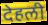
देहली